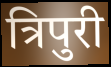
त्रिपुरी